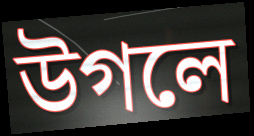
উগলে